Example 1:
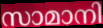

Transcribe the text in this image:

സാമാനി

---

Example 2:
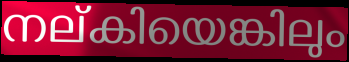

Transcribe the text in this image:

നല്‌കിയെങ്കിലും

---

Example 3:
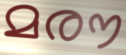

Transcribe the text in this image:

മരൗ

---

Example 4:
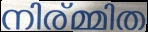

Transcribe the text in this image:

നിര്മ്മിത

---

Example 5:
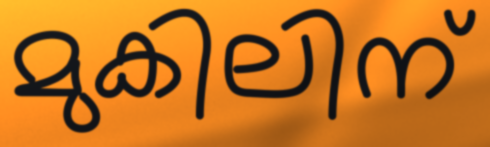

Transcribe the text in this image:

മുകിലിന്